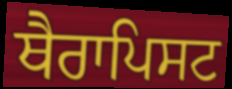
ਥੈਰਾਪਿਸਟ